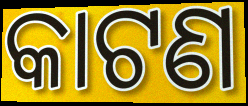
କାଟଣ